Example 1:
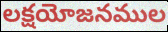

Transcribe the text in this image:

లక్షయోజనముల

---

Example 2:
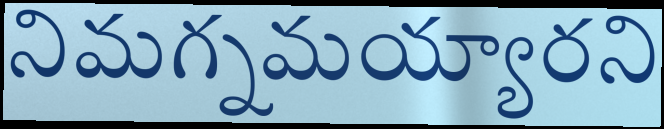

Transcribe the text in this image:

నిమగ్నమయ్యారని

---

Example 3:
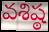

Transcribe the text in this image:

వశిష్ఠ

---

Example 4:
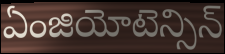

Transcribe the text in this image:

ఏంజియోటెన్సిన్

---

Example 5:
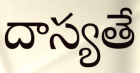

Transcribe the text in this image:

దాస్యతే